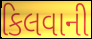
કિલવાની